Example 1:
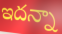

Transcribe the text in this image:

ఇదన్నా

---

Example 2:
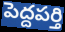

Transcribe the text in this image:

పెద్దపర్తి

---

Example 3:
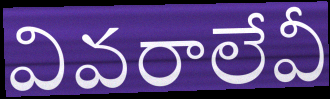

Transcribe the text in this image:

వివరాలేవీ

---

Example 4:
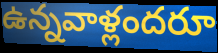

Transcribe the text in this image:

ఉన్నవాళ్లందరూ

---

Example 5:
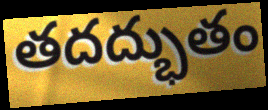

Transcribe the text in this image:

తదద్భుతం